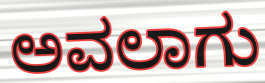
ಅವಲಾಗು